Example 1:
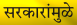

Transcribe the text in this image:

सरकारांमुळे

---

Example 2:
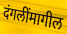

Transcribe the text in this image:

दंगलींमागील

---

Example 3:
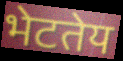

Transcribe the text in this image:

भेटतेय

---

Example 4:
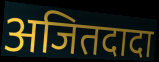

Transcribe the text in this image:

अजितदादा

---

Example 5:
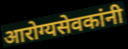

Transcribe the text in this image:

आरोग्यसेवकांनी